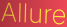
Allure